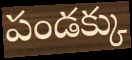
పండక్కు